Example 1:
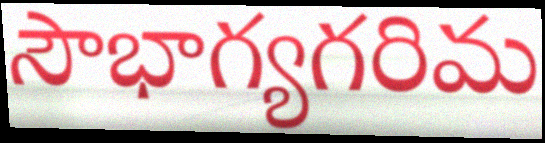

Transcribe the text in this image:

సౌభాగ్యగరిమ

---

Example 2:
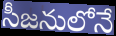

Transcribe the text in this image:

సీజనులోనే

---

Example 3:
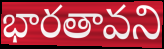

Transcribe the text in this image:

భారతావని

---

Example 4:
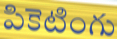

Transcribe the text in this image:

పికెటింగు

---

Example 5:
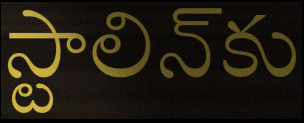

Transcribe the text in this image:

స్టాలిన్‌కు